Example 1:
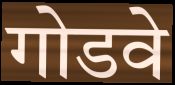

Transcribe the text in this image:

गोडवे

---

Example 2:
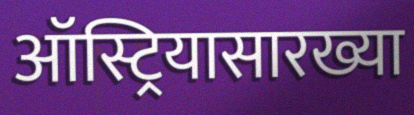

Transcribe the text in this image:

ऑस्ट्रियासारख्या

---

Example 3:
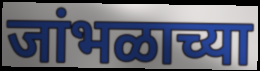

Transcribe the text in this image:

जांभळाच्या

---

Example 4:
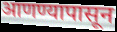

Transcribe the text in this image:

आणण्यापासून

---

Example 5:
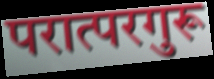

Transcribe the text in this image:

परात्परगुरू